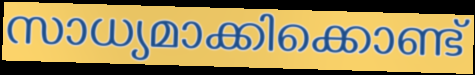
സാധ്യമാക്കിക്കൊണ്ട്